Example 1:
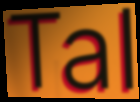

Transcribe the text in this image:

Tal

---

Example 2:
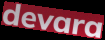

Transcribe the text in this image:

devara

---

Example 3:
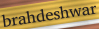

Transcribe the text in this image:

brahdeshwar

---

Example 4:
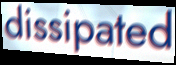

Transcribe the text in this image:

dissipated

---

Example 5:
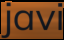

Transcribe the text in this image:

javi